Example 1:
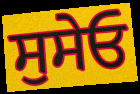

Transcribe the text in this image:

ਸੁਸੇਓ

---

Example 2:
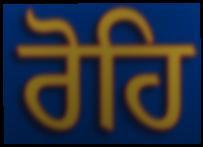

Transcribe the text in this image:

ਰੋਹਿ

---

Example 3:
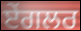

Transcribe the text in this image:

ਏਂਗਲਰ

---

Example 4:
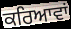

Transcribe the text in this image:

ਕਰਿਆਵਾਂ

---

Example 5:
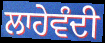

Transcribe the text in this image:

ਲਾਹੇਵੰਦੀ